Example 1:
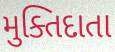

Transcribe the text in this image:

મુક્તિદાતા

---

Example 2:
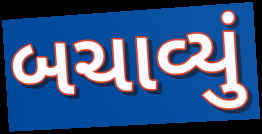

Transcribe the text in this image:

બચાવ્યું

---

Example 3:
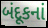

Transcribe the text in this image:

બંદૂકનાં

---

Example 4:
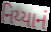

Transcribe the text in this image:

નિય્યાનં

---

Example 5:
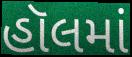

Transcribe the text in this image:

હૉલમાં